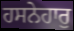
ਹਸਨੇਹਾਰੁ